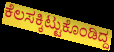
ಕೆಲಸಕ್ಕಿಟ್ಟುಕೊಂಡಿದ್ದ